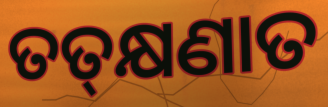
ତତ୍‌କ୍ଷଣାତ